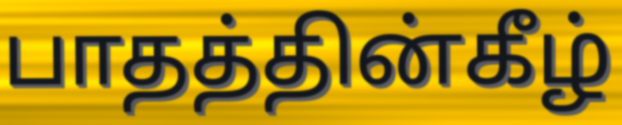
பாதத்தின்கீழ்